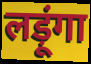
लड़ूंगा